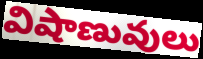
విషాణువులు